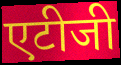
एटीजी